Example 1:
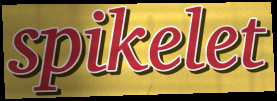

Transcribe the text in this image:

spikelet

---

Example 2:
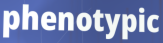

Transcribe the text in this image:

phenotypic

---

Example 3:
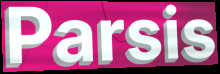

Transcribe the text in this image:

Parsis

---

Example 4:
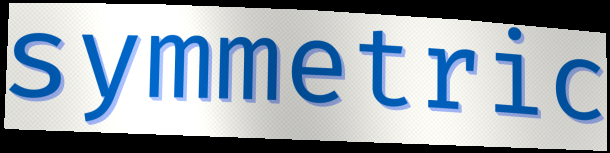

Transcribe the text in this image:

symmetric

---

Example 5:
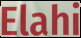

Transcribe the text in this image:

Elahi